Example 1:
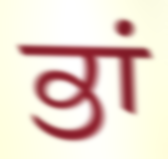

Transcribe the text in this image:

ਭਾਂ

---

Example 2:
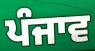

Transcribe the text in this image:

ਪੰਜਾਵ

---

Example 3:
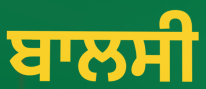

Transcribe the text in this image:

ਬਾਲਸੀ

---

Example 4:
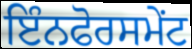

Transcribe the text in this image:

ਇੰਨਫੋਰਸਮੇਂਟ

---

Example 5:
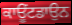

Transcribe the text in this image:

ਕਾਊਂਟਡਾਉਨ